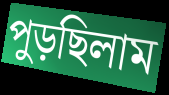
পুড়ছিলাম